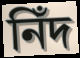
নিঁদ